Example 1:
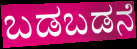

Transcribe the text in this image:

ಬಡಬಡನೆ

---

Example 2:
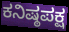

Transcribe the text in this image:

ಕನಿಷ್ಠಪಕ್ಷ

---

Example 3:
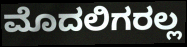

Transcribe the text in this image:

ಮೊದಲಿಗರಲ್ಲ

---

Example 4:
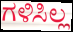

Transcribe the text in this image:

ಗಳಿಸಿಲ್ಲ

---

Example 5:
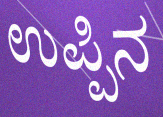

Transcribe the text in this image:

ಉಪ್ಪಿನ